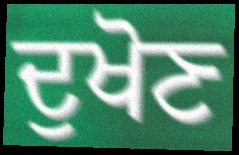
ਦੁਖੋਣ